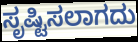
ಸೃಷ್ಟಿಸಲಾಗದು